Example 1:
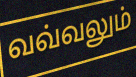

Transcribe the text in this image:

வவ்வலும்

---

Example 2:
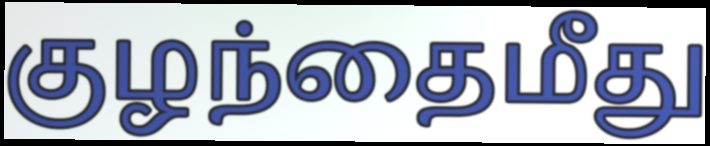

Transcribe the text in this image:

குழந்தைமீது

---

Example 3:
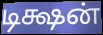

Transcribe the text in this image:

டிக்ஷன்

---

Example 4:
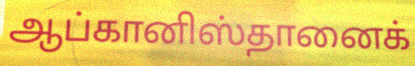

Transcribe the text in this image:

ஆப்கானிஸ்தானைக்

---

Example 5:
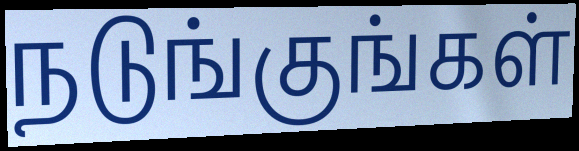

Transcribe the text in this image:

நடுங்குங்கள்